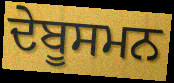
ਦੇਬੂਸਮਨ